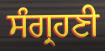
ਸੰਗ੍ਰਹਣੀ